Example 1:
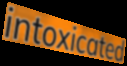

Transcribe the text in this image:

intoxicated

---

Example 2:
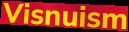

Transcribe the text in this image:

Visnuism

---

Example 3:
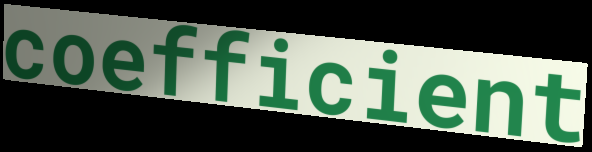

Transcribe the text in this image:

coefficient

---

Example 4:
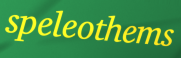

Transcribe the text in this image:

speleothems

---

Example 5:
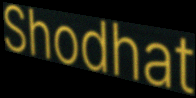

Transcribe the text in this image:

Shodhat